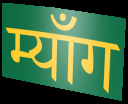
म्याँग